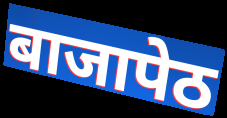
बाजापेठ